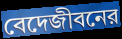
বেদেজীবনের